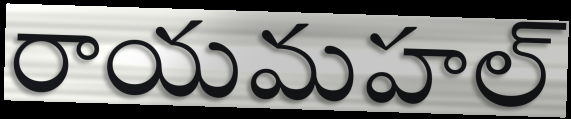
రాయమహల్